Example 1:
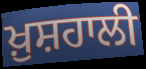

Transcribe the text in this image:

ਖ਼ੁਸ਼ਹਾਲੀ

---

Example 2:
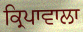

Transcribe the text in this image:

ਕ੍ਰਿਪਾਵਾਲਾ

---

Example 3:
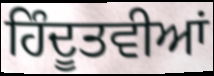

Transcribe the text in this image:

ਹਿੰਦੂਤਵੀਆਂ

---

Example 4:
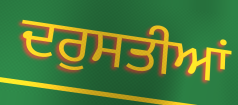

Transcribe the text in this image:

ਦਰੁਸਤੀਆਂ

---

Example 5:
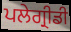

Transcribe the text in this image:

ਪਲੇਗ੍ਰੀਡੀ